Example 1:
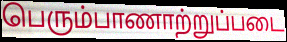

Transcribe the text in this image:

பெரும்பாணாற்றுப்படை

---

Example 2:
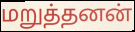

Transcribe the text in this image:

மறுத்தனன்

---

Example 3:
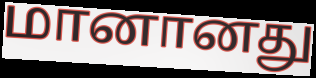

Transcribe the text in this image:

மானானது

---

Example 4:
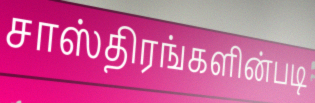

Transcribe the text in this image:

சாஸ்திரங்களின்படி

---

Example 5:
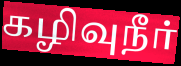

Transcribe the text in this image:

கழிவுநீர்